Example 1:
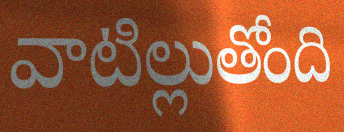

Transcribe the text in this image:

వాటిల్లుతోంది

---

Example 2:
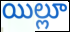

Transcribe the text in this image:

యిల్లూ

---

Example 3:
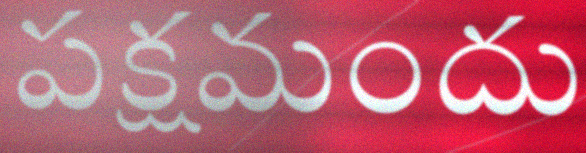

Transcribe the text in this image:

పక్షమందు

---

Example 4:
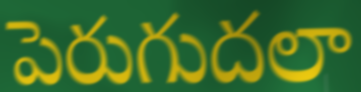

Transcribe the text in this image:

పెరుగుదలా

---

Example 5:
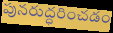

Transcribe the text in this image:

పునరుద్ధరించడం